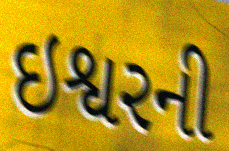
ઇશ્વરની